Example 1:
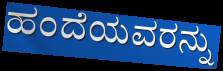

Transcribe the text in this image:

ಹಂದೆಯವರನ್ನು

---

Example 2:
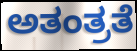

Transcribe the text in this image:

ಅತಂತ್ರತೆ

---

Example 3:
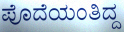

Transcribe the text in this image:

ಪೊದೆಯಂತಿದ್ದ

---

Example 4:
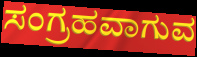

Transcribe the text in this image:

ಸಂಗ್ರಹವಾಗುವ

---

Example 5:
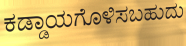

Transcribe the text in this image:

ಕಡ್ಡಾಯಗೊಳಿಸಬಹುದು